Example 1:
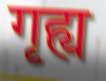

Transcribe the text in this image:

गृह्य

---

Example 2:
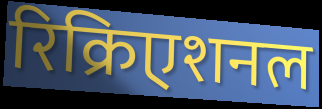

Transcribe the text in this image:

रिक्रिएशनल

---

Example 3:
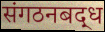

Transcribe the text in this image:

संगठनबद्ध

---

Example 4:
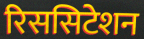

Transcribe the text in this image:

रिससिटेशन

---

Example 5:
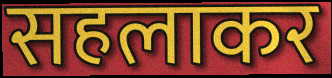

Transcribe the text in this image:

सहलाकर